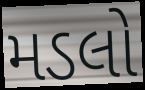
મડલો